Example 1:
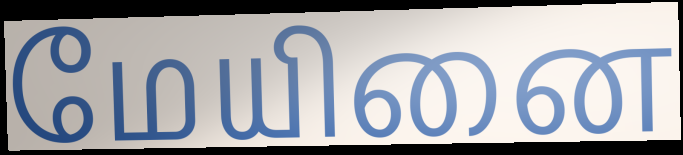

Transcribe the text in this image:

மேயினை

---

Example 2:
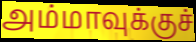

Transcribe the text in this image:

அம்மாவுக்குச்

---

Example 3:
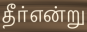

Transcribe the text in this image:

தீர்என்று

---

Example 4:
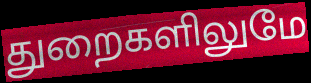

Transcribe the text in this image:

துறைகளிலுமே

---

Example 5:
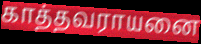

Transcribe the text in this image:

காத்தவராயனை